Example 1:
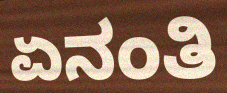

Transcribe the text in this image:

ಏನಂತಿ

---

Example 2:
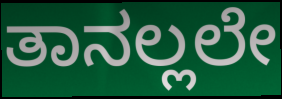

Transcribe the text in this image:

ತಾನಲ್ಲಲೇ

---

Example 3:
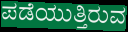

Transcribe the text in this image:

ಪಡೆಯುತ್ತಿರುವ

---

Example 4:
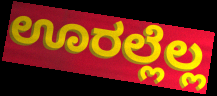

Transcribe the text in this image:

ಊರಲ್ಲೆಲ್ಲ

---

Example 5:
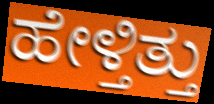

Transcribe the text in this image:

ಹೇಳ್ತಿತ್ತು